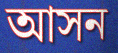
আসন